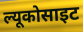
ल्यूकोसाइट